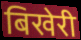
बिखेरी